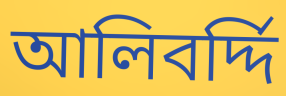
আলিবর্দ্দি